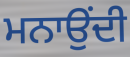
ਮਨਾਉਂਦੀ